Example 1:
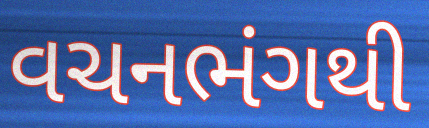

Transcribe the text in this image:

વચનભંગથી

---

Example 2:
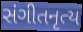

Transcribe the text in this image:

સંગીતનૃત્ય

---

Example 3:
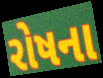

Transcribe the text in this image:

રોષના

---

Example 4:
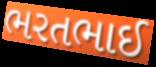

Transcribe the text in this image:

ભરતભાઈ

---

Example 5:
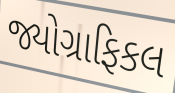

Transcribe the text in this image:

જ્યોગ્રાફિકલ